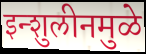
इन्शुलीनमुळे